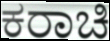
ಕರಾಚಿ